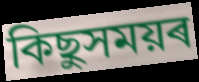
কিছুসময়ৰ